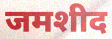
जमशीद